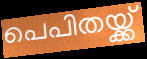
പെപിതയ്ക്ക്